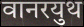
वानरयुथ